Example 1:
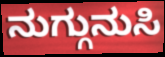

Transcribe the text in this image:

ನುಗ್ಗುನುಸಿ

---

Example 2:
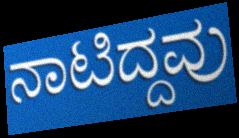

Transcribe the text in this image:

ನಾಟಿದ್ದವು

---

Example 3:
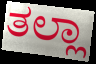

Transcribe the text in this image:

ತಲ್ಲಾ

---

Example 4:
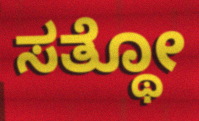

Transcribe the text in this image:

ಸತ್ಥೋ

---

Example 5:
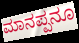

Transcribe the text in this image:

ಮಾನಪ್ಪನೂ